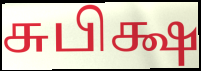
சுபிக்ஷ